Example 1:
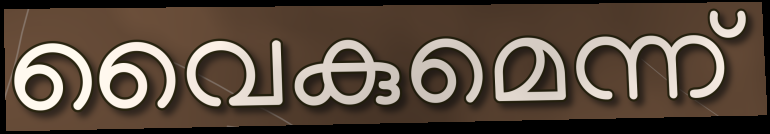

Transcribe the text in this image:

വൈകുമെന്ന്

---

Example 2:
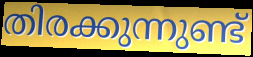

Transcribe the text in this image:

തിരക്കുന്നുണ്ട്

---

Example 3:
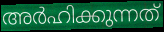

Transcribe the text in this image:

അർഹിക്കുന്നത്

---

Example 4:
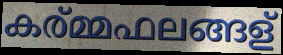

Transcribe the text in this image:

കര്മ്മഫലങ്ങള്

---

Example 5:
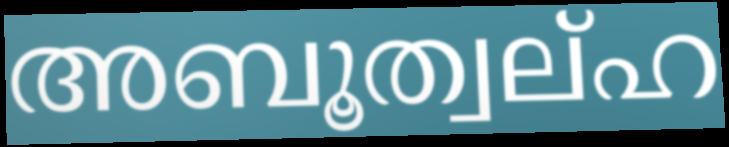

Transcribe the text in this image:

അബൂത്വല്ഹ